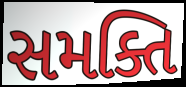
સમક્તિ